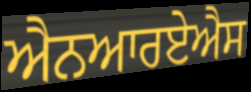
ਐਨਆਰਏਐਸ